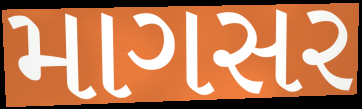
માગસર